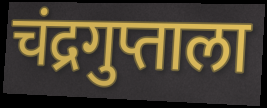
चंद्रगुप्ताला